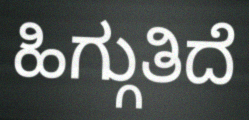
ಹಿಗ್ಗುತಿದೆ